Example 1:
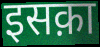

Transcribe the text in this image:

इसक़ा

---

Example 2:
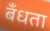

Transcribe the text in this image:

बँधता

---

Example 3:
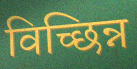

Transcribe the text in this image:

विच्छिन्न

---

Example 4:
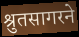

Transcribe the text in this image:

श्रुतसागरने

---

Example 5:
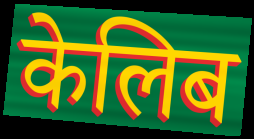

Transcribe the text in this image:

केलिब